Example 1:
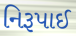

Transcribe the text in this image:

નિરૂપાઈ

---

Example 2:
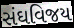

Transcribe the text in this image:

સંઘવિજય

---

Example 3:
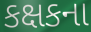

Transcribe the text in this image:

કક્ષકના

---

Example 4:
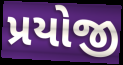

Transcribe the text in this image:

પ્રયોજી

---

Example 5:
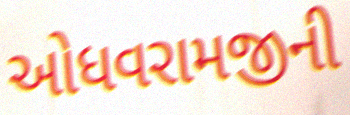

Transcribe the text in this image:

ઓધવરામજીની